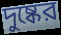
দুষ্কের